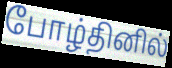
போழ்தினில்